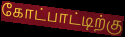
கோட்பாட்டிற்கு